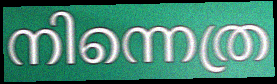
നിന്നെത്ര